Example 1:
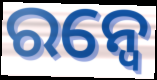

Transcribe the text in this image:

ରନ୍ୱେ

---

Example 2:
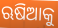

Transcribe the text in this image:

ଋଷିଆକୁ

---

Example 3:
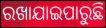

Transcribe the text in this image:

ରଖାଯାଇପାରୁଛି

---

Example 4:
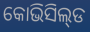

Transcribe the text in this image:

କୋଭିସିଲ୍‌ଡ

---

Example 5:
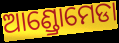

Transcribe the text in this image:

ଆଣ୍ଡ୍ରୋମେଡା